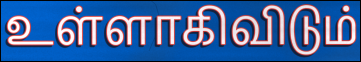
உள்ளாகிவிடும்